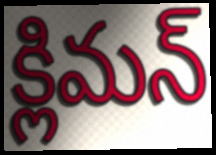
క్లిమన్